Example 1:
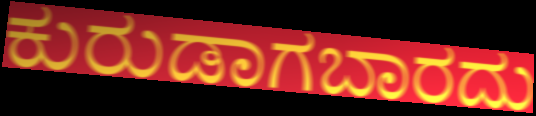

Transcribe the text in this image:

ಕುರುಡಾಗಬಾರದು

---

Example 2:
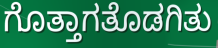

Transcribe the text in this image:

ಗೊತ್ತಾಗತೊಡಗಿತು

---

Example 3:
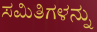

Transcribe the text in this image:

ಸಮಿತಿಗಳನ್ನು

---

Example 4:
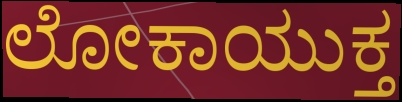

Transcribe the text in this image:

ಲೋಕಾಯುಕ್ತ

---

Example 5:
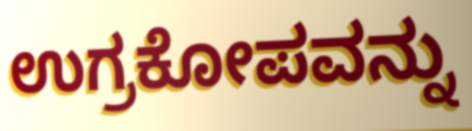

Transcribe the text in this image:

ಉಗ್ರಕೋಪವನ್ನು